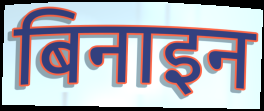
बिनाइन